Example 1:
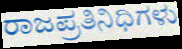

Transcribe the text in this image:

ರಾಜಪ್ರತಿನಿಧಿಗಳು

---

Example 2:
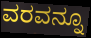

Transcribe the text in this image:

ವರವನ್ನೂ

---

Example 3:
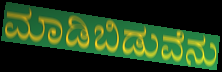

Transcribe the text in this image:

ಮಾಡಿಬಿಡುವೆನು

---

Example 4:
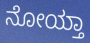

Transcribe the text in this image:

ನೋಯ್ತಾ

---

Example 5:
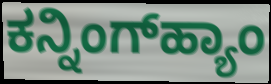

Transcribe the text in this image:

ಕನ್ನಿಂಗ್‌ಹ್ಯಾಂ